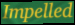
Impelled